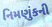
નિમણુંકની